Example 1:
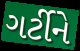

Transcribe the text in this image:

ગર્ટીને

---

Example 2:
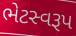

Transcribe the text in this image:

ભેટસ્વરૂપ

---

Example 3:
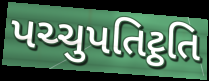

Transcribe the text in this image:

પચ્ચુપતિટ્ઠતિ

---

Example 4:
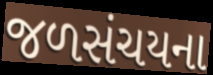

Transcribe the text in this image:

જળસંચયના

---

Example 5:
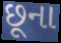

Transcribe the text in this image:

છૂના